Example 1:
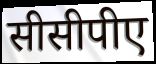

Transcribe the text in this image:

सीसीपीए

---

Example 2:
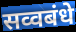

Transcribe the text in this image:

सव्वबंधे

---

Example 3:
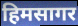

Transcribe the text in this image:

हिमसागर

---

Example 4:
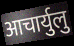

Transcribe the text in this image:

आचार्युलु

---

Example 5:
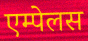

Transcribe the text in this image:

एम्पेलस